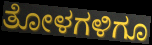
ತೋಳಗಳಿಗೂ